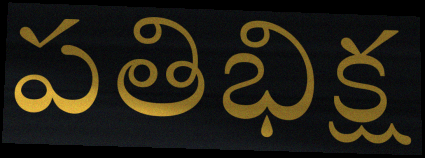
పతిభిక్ష